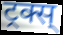
ट्रक्स्